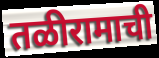
तळीरामाची